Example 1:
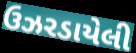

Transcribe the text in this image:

ઉઝરડાયેલી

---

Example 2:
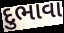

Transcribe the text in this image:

દુભાવા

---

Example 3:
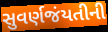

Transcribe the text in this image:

સુવર્ણજંયતીની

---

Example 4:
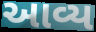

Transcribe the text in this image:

આવ્ય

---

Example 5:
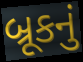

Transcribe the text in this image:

બ્રૂકનું